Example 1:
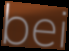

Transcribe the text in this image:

bei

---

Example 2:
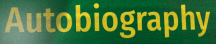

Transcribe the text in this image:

Autobiography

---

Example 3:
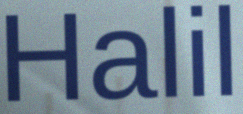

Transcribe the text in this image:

Halil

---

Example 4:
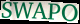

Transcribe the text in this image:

SWAPO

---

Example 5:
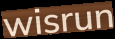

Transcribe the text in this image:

wisrun